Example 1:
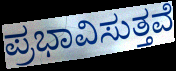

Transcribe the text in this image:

ಪ್ರಭಾವಿಸುತ್ತವೆ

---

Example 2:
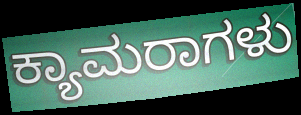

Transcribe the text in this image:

ಕ್ಯಾಮರಾಗಳು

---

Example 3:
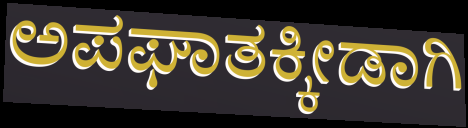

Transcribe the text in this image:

ಅಪಘಾತಕ್ಕೀಡಾಗಿ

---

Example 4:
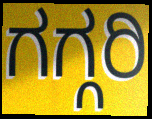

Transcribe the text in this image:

ಗಗ್ಗರಿ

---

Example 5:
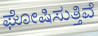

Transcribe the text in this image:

ಘೋಷಿಸುತ್ತಿವೆ